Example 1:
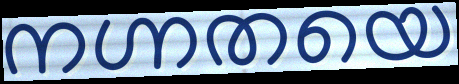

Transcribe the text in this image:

നഗ്നതയെ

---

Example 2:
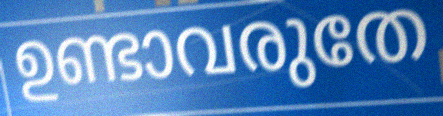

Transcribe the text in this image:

ഉണ്ടാവരുതേ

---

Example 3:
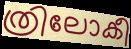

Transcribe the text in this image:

ത്രിലോകീ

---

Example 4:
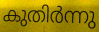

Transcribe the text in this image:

കുതിർന്നു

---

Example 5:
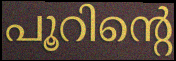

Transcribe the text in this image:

പൂറിന്റെ